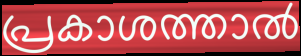
പ്രകാശത്താൽ